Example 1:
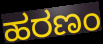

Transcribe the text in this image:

ಹರಣಂ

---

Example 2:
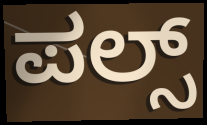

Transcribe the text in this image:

ಪಲ್ಸ್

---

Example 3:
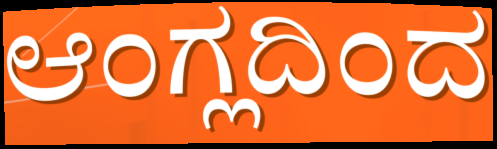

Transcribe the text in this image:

ಆಂಗ್ಲದಿಂದ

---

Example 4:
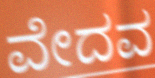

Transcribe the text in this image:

ವೇದವ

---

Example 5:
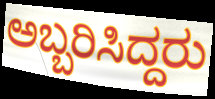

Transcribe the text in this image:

ಅಬ್ಬರಿಸಿದ್ದರು